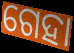
ଗେହା